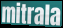
mitrala